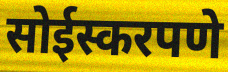
सोईस्करपणे